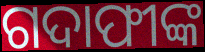
ଗଦାଫୀଙ୍କ